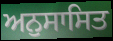
ਅਨੁਸਾਸਿਤ